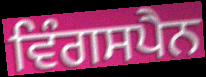
ਵਿੰਗਸਪੈਨ